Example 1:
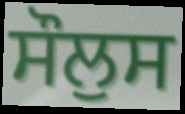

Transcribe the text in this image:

ਸੌਲੁਸ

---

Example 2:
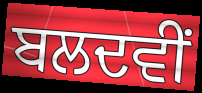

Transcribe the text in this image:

ਬਲਦਵੀਂ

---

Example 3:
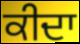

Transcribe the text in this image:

ਕੀਦਾ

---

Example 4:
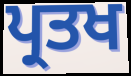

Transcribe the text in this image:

ਪ੍ਰਤਖ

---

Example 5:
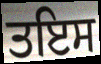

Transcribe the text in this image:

ਤਇਸ